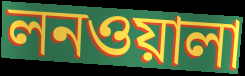
লনওয়ালা